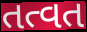
તત્વત